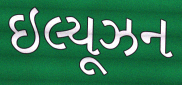
ઇલ્યૂઝન